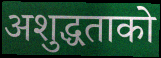
अशुद्धताको